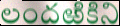
లందఱికిని